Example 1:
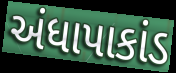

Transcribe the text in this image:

અંધાપાકાંડ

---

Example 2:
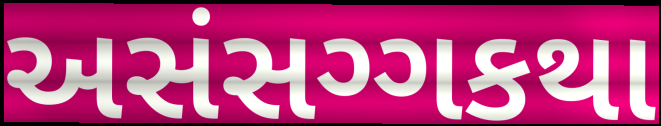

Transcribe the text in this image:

અસંસગ્ગકથા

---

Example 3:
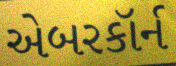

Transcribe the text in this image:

એબરકૉર્ન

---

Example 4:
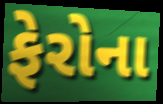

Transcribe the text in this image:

ફેરોના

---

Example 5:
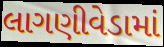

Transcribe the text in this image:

લાગણીવેડામાં